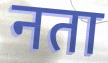
नता